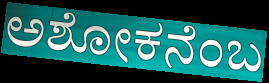
ಅಶೋಕನೆಂಬ